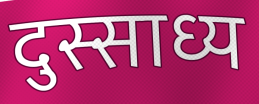
दुस्साध्य